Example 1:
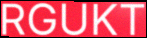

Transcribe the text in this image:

RGUKT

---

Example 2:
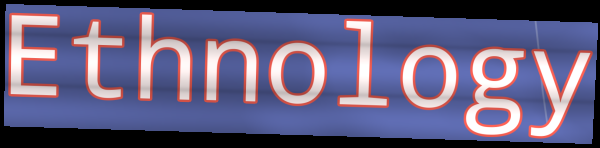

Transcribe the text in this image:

Ethnology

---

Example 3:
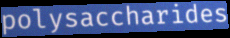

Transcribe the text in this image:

polysaccharides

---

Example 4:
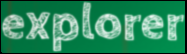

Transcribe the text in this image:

explorer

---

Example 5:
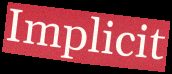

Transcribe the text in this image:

Implicit